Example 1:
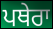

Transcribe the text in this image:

ਪਥੇਰਾ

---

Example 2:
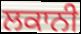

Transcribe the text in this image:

ਲਕਾਨੀ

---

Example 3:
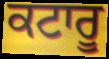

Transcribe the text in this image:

ਕਟਾਰੂ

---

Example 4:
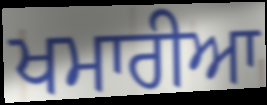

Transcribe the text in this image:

ਖਮਾਰੀਆ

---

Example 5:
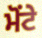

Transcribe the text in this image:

ਮੋਂਟੇ